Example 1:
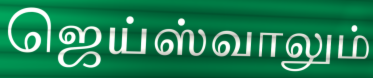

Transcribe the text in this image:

ஜெய்ஸ்வாலும்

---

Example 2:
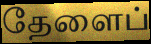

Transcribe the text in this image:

தேளைப்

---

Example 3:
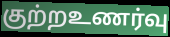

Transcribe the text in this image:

குற்றஉணர்வு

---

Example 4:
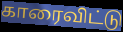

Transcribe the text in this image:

காரைவிட்டு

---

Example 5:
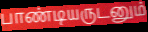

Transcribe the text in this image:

பாண்டியருடனும்